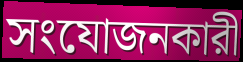
সংযোজনকারী